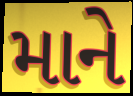
માને